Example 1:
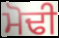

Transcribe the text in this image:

ਮੋਢੀ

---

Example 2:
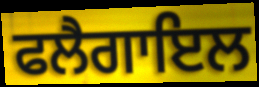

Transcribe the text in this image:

ਫਲੈਗਾਇਲ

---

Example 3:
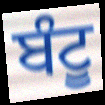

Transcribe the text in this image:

ਬੰਟੂ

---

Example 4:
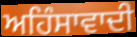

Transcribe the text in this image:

ਅਹਿੰਸਾਵਾਦੀ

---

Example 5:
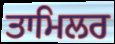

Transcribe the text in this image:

ਤਾਮਿਲਰ